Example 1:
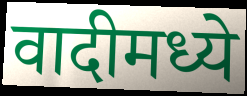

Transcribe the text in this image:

वादीमध्ये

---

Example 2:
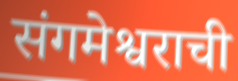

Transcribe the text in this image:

संगमेश्वराची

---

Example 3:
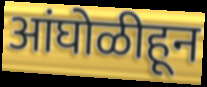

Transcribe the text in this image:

आंघोळीहून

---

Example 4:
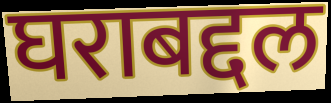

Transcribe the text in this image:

घराबद्दल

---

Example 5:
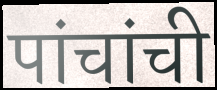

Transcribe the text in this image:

पांचांची